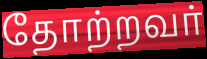
தோற்றவர்